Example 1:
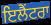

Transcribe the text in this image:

ਇਲੈਂਟਰਾ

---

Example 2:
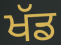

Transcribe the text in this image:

ਖੱਡ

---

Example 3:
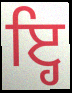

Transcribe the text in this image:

ਇ੍ਹ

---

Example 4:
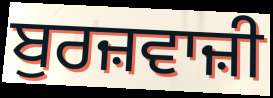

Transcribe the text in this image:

ਬੁਰਜ਼ਵਾਜ਼ੀ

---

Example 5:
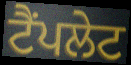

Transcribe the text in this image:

ਟੈਂਪਲੇਟ